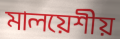
মালয়েশীয়